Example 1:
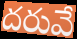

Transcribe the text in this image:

దరువే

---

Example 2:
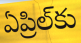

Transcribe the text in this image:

ఏప్రిల్‌కు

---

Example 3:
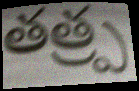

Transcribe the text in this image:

తత్ర్ప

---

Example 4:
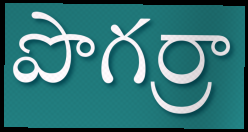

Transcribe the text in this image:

పొగర్రా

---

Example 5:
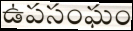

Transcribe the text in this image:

ఉపసంఘం